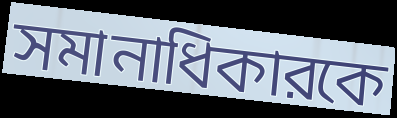
সমানাধিকারকে